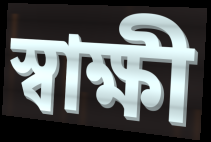
স্বাক্ষী